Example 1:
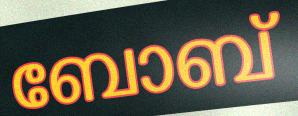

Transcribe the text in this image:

ബോബ്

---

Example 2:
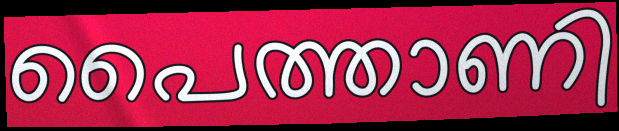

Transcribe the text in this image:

പൈത്താണി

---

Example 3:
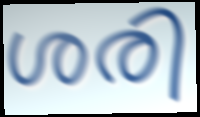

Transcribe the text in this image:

ശരി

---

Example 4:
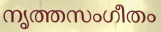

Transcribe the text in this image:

നൃത്തസംഗീതം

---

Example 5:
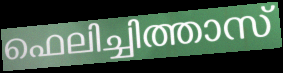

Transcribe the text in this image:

ഫെലിച്ചിത്താസ്